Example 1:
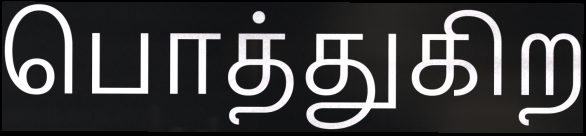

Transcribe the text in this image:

பொத்துகிற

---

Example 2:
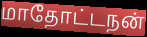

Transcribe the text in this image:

மாதோட்டநன்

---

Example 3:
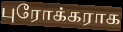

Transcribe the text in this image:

புரோக்கராக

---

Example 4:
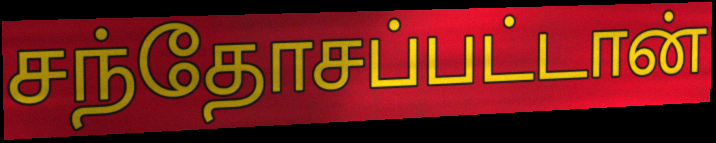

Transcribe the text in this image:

சந்தோசப்பட்டான்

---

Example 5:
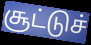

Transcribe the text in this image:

சூட்டுச்